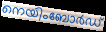
നെയിംബോർഡ്